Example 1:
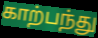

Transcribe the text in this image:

காற்பந்து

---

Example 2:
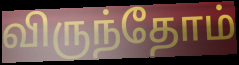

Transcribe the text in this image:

விருந்தோம்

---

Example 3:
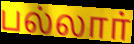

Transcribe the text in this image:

பல்லார்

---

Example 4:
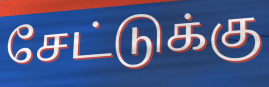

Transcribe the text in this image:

சேட்டுக்கு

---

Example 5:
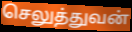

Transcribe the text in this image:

செலுத்துவன்